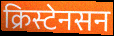
क्रिस्टेनसन